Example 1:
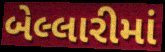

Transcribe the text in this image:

બેલ્લારીમાં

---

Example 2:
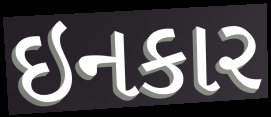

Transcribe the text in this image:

ઇનકાર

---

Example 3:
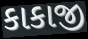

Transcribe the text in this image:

કાકાજી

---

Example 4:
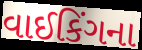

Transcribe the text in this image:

વાઈકિંગના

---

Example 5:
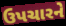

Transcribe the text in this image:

ઉપચારને